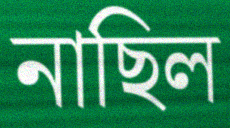
নাছিল